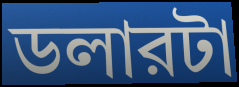
ডলারটা